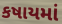
કષાયમાં